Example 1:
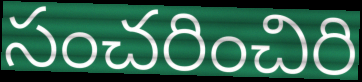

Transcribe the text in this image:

సంచరించిరి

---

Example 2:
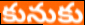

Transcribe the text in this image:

కునుకు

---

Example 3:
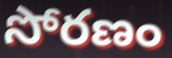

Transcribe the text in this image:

సోరణం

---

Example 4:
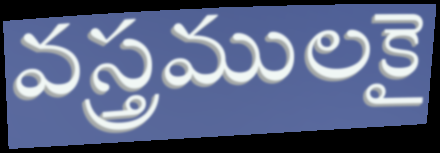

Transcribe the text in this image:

వస్త్రములకై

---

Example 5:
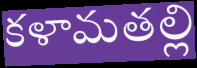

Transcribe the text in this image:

కళామతల్లి